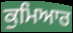
ਕੁਮਿਆਰ